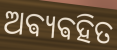
ଅଵ୍ୟଵହିତ